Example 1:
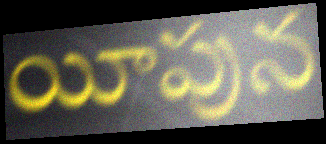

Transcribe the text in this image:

యీపున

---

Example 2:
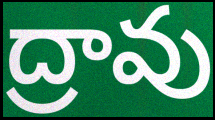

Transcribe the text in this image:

ద్రావు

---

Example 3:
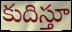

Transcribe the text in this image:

కుదిస్తూ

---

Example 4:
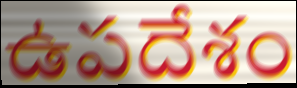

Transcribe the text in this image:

ఉపదేశం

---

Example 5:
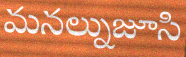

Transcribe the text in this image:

మనల్నుజూసి